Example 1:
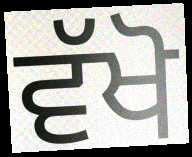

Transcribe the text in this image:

ਵੱਖੋ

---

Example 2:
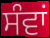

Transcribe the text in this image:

ਸੰਵਾਂ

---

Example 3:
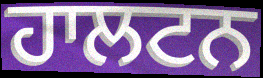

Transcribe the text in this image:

ਹਾਲਟਨ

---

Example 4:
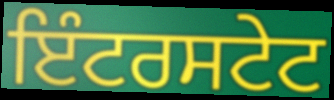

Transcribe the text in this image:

ਇੰਟਰਸਟੇਟ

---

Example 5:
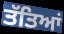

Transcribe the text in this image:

ਤੱਤਿਆਂ